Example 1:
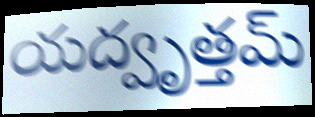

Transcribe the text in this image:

యద్వృత్తమ్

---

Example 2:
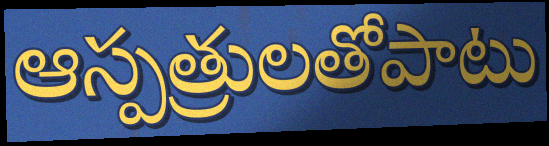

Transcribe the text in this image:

ఆస్పత్రులతోపాటు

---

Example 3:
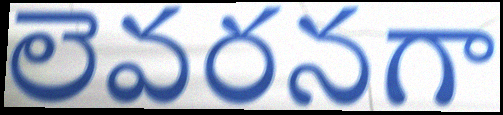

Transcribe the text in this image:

లెవరనగా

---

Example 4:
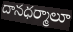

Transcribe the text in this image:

దానధర్మాలూ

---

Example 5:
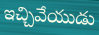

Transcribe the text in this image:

ఇచ్చివేయుడు